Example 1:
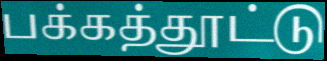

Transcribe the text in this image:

பக்கத்தூட்டு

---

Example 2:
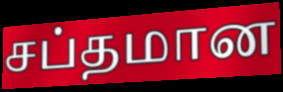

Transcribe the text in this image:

சப்தமான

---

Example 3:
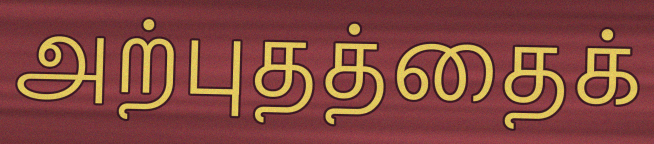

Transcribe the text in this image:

அற்புதத்தைக்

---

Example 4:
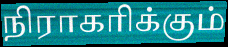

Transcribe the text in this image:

நிராகரிக்கும்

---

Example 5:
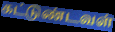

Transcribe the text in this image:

கட்டுண்டவள்